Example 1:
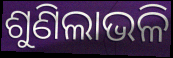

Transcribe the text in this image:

ଶୁଣିଲାଭଳି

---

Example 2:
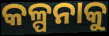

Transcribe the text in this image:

କଳ୍ପନାକୁ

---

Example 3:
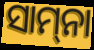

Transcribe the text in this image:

ସାମ୍‍ନା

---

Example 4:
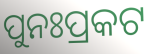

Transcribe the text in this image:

ପୁନଃପ୍ରକଟ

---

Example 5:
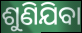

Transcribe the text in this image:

ଶୁଣିଯିବା